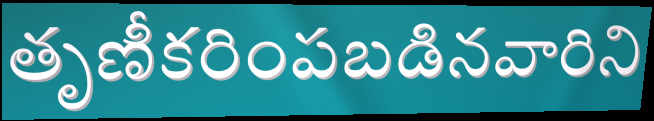
తృణీకరింపబడినవారిని